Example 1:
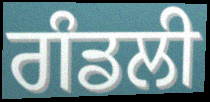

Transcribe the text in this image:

ਗੰਡਲੀ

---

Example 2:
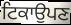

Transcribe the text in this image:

ਟਿਕਾਉਪਣ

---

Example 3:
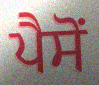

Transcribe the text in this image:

ਪੈਸੋਂ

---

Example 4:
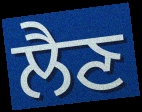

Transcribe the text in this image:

ਲੈਣ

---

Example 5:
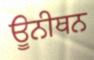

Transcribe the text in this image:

ਊਨੀਥਨ